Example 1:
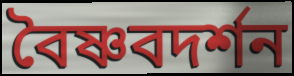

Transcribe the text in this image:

বৈষ্ণবদর্শন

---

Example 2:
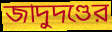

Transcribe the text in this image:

জাদুদণ্ডের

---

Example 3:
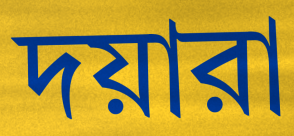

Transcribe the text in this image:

দয়ারা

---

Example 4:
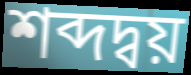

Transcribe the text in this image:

শব্দদ্বয়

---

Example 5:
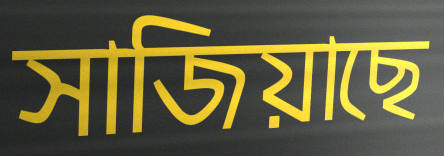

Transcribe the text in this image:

সাজিয়াছে